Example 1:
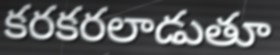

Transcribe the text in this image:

కరకరలాడుతూ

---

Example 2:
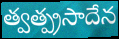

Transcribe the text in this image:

త్వత్ప్రసాదేన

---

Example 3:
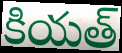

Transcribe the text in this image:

కియత్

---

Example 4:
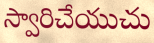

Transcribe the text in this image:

స్వారిచేయుచు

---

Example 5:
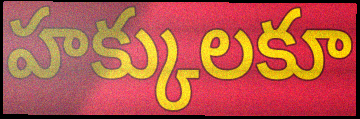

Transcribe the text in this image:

హక్కులకూ